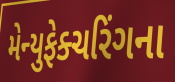
મેન્યુફેક્ચરિંગના